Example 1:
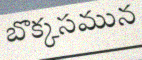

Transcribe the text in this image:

బొక్కసమున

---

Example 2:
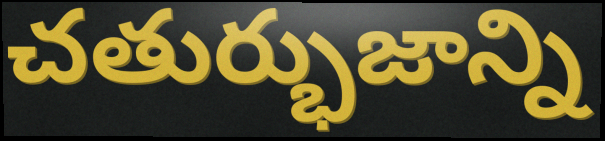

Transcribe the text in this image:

చతుర్భుజాన్ని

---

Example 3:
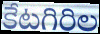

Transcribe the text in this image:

కేటగిరిల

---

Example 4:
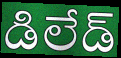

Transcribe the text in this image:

డిలేడ్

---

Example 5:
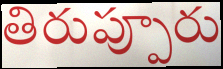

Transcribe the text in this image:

తిరుప్పూరు